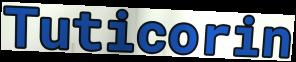
Tuticorin